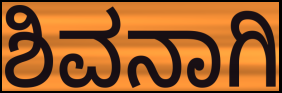
ಶಿವನಾಗಿ